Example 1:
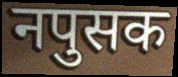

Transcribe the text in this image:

नपुसक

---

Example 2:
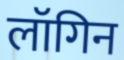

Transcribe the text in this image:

लॉगिन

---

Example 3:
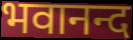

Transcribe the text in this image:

भवानन्द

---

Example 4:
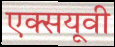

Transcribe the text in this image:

एक्सयूवी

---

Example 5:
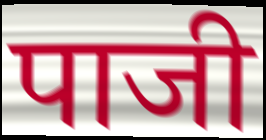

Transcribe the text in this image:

पाजी